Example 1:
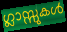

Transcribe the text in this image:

ഗ്ലാസ്സുകൾ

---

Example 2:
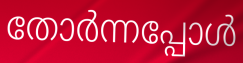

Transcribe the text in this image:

തോർന്നപ്പോൾ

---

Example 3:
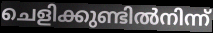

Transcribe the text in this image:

ചെളിക്കുണ്ടിൽനിന്ന്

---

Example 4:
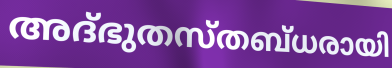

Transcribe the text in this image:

അദ്ഭുതസ്തബ്ധരായി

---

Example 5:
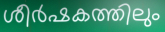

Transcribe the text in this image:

ശീർഷകത്തിലും